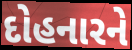
દોહનારને